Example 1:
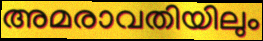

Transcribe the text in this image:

അമരാവതിയിലും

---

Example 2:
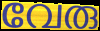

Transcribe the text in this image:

വേരു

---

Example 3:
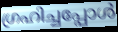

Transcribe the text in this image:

ഗ്രഹിച്ചപ്പോൾ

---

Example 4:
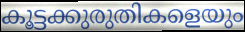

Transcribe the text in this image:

കൂട്ടക്കുരുതികളെയും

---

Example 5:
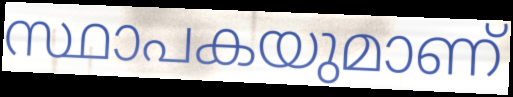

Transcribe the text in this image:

സ്ഥാപകയുമാണ്